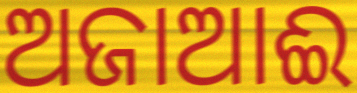
ଅଜାଆଈ